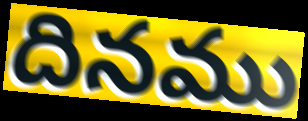
దినము